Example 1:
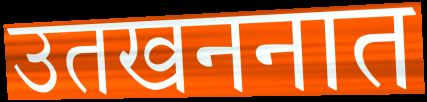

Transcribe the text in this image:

उतखननात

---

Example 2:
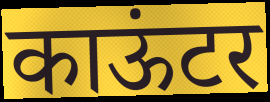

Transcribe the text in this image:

काऊंटर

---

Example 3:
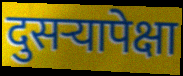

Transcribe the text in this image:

दुसऱ्यापेक्षा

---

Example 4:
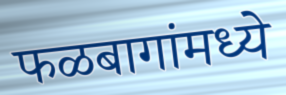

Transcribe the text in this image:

फळबागांमध्ये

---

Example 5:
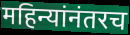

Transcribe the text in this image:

महिन्यांनंतरच